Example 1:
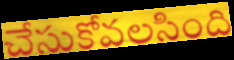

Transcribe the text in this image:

చేసుకోవలసింది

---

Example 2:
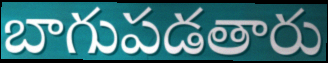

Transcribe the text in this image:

బాగుపడతారు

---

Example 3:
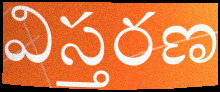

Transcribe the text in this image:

విస్తరణ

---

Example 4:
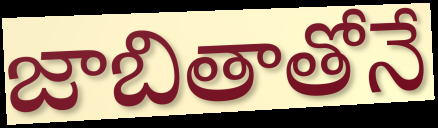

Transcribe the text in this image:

జాబితాతోనే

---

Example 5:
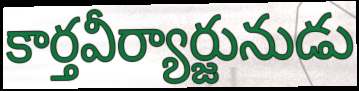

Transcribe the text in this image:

కార్తవీర్యార్జునుడు